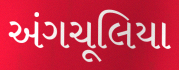
અંગચૂલિયા